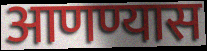
आणण्यास